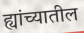
ह्यांच्यातील